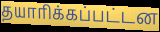
தயாரிக்கப்பட்டன